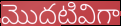
మొదటివిగా